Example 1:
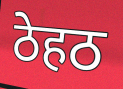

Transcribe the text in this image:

ठेहठ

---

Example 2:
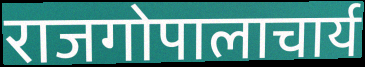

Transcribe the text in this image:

राजगोपालाचार्य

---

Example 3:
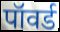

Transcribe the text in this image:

पॉवर्ड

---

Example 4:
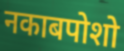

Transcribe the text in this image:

नकाबपोशो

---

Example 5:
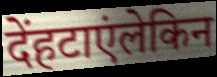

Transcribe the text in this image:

देंहटाएंलेकिन